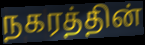
நகரத்தின்